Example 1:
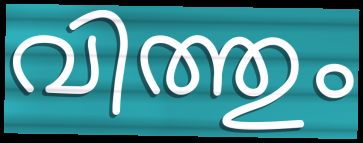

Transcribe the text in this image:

വിത്തും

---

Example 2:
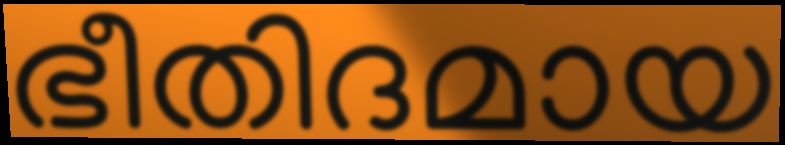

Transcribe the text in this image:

ഭീതിദമായ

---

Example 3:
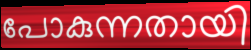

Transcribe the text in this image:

പോകുന്നതായി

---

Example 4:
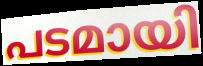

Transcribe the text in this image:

പടമായി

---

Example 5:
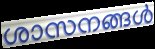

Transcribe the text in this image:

ശാസനങ്ങൾ